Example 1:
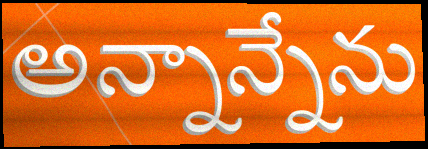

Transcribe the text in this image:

అన్నాన్నేను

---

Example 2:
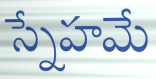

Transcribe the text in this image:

స్నేహమే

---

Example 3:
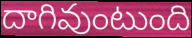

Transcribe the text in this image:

దాగివుంటుంది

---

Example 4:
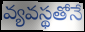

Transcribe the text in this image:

వ్యవస్థతోనే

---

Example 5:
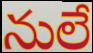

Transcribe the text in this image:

నులే